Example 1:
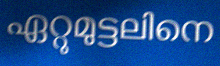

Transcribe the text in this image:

ഏറ്റുമുട്ടലിനെ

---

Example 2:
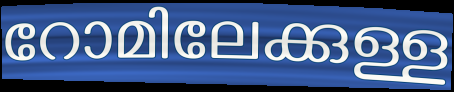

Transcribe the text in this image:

റോമിലേക്കുള്ള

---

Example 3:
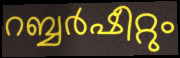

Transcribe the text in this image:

റബ്ബർഷീറ്റും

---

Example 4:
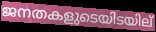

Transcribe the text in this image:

ജനതകളുടെയിടയില്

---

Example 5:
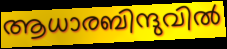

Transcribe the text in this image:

ആധാരബിന്ദുവിൽ